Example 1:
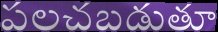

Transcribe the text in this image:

పలచబడుతూ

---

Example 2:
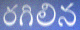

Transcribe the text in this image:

రగిలిన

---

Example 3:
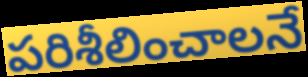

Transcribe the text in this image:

పరిశీలించాలనే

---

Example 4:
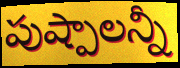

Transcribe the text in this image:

పుష్పాలన్నీ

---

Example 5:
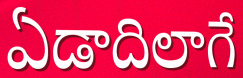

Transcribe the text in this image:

ఏడాదిలాగే